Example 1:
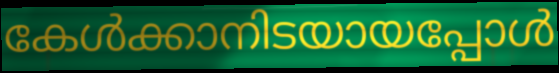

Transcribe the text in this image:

കേൾക്കാനിടയായപ്പോൾ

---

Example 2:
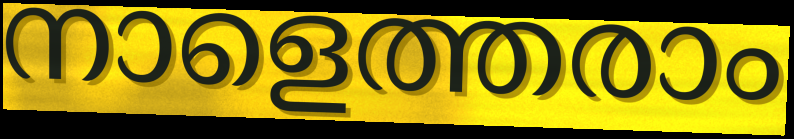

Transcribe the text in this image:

നാളെത്തരാം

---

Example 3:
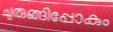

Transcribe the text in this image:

ചുരുങ്ങിപ്പോകും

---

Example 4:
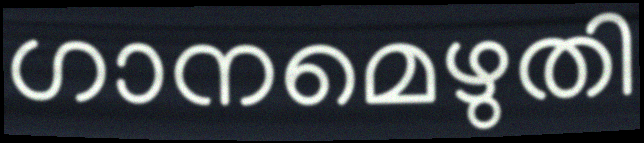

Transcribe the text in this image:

ഗാനമെഴുതി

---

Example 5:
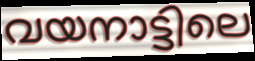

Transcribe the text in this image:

വയനാട്ടിലെ